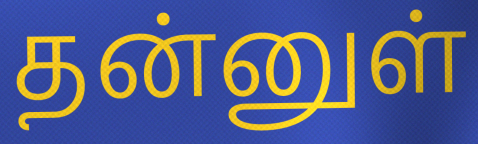
தன்னுள்